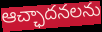
ఆచ్ఛాదనలను